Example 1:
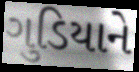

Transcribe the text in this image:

ગુડિયાને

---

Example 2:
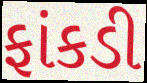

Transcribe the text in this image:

ફાંકડી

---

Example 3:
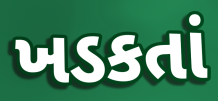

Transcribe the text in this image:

ખડકતાં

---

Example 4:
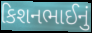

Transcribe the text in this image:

કિશનભાઈનું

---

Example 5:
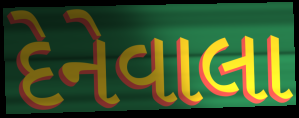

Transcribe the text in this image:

દેનેવાલા